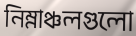
নিম্নাঞ্চলগুলো